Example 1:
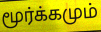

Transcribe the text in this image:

மூர்க்கமும்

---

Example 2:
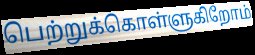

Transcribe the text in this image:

பெற்றுக்கொள்ளுகிறோம்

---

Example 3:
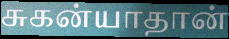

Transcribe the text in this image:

சுகன்யாதான்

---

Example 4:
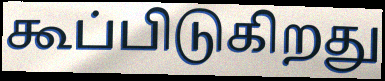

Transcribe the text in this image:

கூப்பிடுகிறது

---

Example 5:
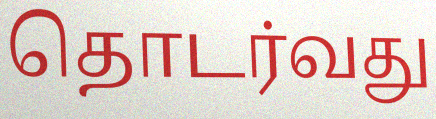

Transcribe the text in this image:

தொடர்வது